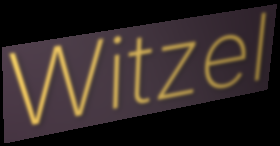
Witzel